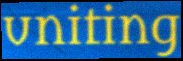
uniting